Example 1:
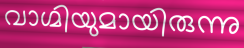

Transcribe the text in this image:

വാഗ്മിയുമായിരുന്നു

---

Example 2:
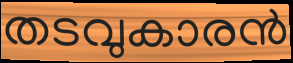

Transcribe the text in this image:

തടവുകാരൻ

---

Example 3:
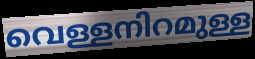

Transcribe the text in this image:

വെള്ളനിറമുള്ള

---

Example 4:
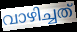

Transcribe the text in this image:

വാഴിച്ചത്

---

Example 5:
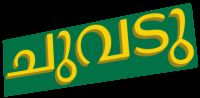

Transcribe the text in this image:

ചുവടു